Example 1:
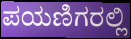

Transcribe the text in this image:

ಪಯಣಿಗರಲ್ಲಿ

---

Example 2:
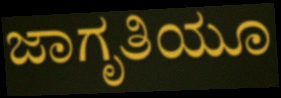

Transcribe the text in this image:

ಜಾಗೃತಿಯೂ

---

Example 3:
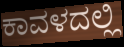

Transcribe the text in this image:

ಕಾವಳದಲ್ಲಿ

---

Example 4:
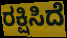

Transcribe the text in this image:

ರಕ್ಷಿಸಿದೆ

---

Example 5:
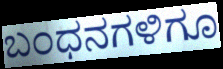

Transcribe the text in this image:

ಬಂಧನಗಳಿಗೂ